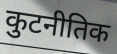
कुटनीतिक